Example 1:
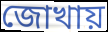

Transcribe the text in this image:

জোখায়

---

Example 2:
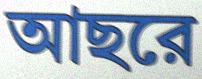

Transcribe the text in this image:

আছরে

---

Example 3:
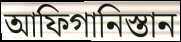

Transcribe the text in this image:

আফিগানিস্তান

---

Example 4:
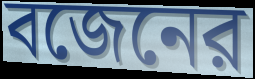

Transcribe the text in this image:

বজেনের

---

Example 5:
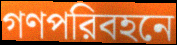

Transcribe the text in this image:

গণপরিবহনে